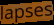
lapses